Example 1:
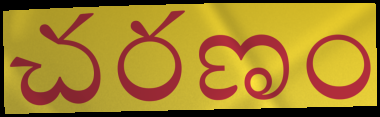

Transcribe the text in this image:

చరణం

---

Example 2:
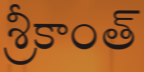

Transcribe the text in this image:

శ్రీకాంత్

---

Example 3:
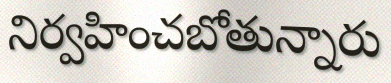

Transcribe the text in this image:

నిర్వహించబోతున్నారు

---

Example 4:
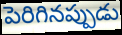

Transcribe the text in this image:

పెరిగినప్పుడు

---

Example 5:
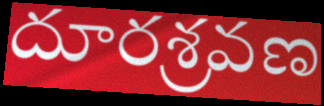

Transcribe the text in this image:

దూరశ్రవణ